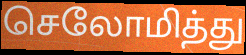
செலோமித்து